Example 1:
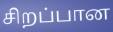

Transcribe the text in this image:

சிறப்பான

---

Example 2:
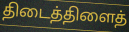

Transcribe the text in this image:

திடைத்திளைத்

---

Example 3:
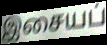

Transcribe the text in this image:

இசையப்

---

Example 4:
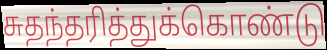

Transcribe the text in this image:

சுதந்தரித்துக்கொண்டு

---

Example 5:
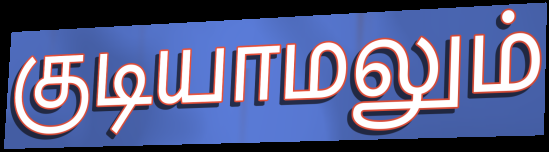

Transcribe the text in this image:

குடியாமலும்